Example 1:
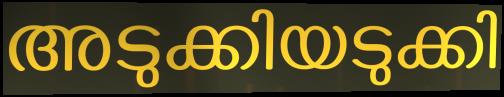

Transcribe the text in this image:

അടുക്കിയടുക്കി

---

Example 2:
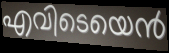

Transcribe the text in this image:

എവിടെയെൻ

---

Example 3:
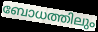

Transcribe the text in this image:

ബോധത്തിലും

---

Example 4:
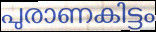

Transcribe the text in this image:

പുരാണകിട്ടം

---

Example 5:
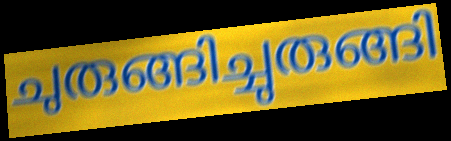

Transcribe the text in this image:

ചുരുങ്ങിച്ചുരുങ്ങി